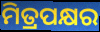
ମିତ୍ରପକ୍ଷର